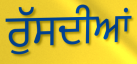
ਰੁੱਸਦੀਆਂ